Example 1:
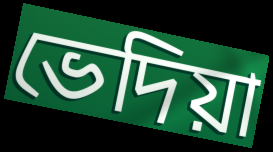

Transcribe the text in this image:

ভেদিয়া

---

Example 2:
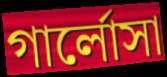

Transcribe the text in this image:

গার্লোসা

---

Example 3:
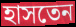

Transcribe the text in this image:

হাসতেন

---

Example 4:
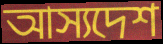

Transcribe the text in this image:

আস্যদেশ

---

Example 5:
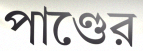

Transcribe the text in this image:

পাণ্ডের